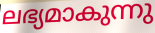
ലഭ്യമാകുന്നു